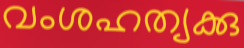
വംശഹത്യക്കു